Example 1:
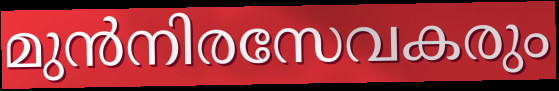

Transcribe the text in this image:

മുൻനിരസേവകരും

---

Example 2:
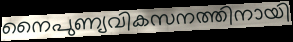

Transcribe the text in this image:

നൈപുണ്യവികസനത്തിനായി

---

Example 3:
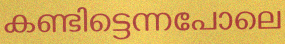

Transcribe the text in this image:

കണ്ടിട്ടെന്നപോലെ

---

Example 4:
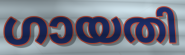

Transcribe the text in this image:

ഗായതി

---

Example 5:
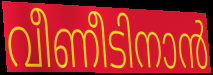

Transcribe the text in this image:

വീണീടിനാൻ